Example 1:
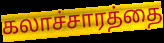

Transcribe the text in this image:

கலாச்சாரத்தை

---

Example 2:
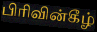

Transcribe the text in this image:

பிரிவின்கீழ்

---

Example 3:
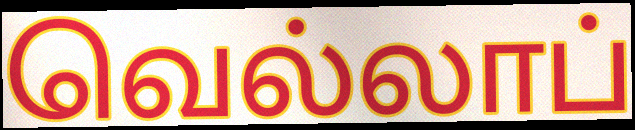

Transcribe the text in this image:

வெல்லாப்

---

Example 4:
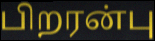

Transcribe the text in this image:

பிறரன்பு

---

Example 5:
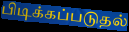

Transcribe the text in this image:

பிடிக்கப்படுதல்